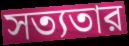
সত্যতার